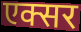
एक्सर